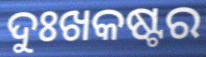
ଦୁଃଖକଷ୍ଟର